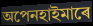
অপেনহাইমাৰে